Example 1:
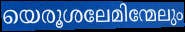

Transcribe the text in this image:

യെരൂശലേമിന്മേലും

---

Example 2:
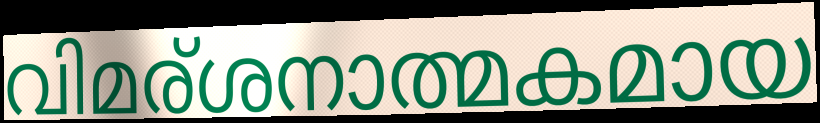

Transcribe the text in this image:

വിമര്ശനാത്മകമായ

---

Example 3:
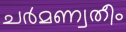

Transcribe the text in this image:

ചർമണ്വതീം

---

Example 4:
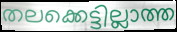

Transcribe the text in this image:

തലക്കെട്ടില്ലാത്ത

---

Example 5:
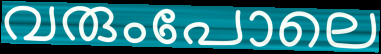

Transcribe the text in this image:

വരുംപോലെ